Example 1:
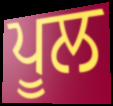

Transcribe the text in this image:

ਪੂਲ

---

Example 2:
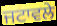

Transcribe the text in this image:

ਜਟਾਵਲੇ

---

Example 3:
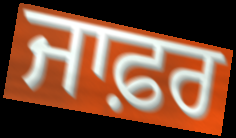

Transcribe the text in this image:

ਜਾਫ਼ਰ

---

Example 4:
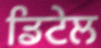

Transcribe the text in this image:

ਡਿਟੇਲ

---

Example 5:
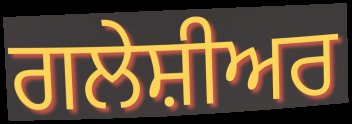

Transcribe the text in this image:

ਗਲੇਸ਼ੀਅਰ